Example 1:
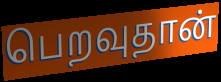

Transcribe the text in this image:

பெறவுதான்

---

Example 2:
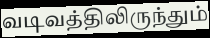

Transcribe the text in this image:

வடிவத்திலிருந்தும்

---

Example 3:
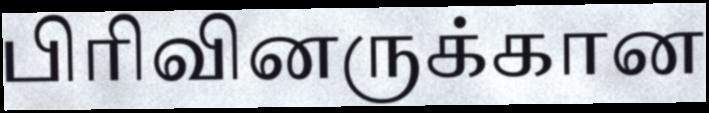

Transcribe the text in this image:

பிரிவினருக்கான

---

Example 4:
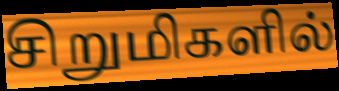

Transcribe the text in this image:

சிறுமிகளில்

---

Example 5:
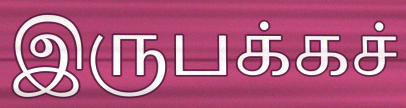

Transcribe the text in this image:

இருபக்கச்